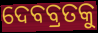
ଦେବବ୍ରତକୁ